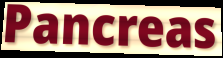
Pancreas